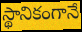
స్థానికంగానే